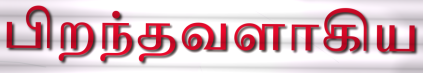
பிறந்தவளாகிய